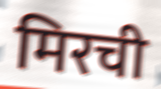
मिरची